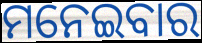
ମନେଇବାର